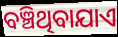
ବଞ୍ଚିଥିବାଯାଏ